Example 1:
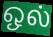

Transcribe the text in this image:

ஒல்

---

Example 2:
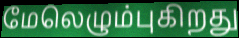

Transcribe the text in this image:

மேலெழும்புகிறது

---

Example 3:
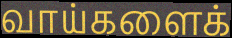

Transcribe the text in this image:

வாய்களைக்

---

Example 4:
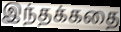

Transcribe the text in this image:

இந்தக்கதை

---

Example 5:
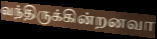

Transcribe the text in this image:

வந்திருக்கின்றனவா